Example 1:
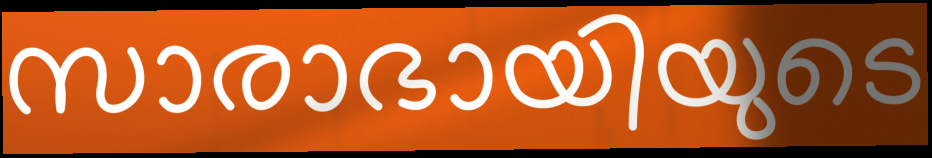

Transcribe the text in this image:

സാരാഭായിയുടെ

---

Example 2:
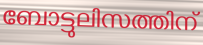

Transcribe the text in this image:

ബോട്ടുലിസത്തിന്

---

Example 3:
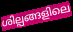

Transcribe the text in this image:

ശില്പങ്ങളിലെ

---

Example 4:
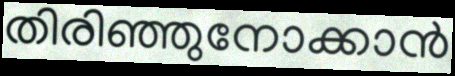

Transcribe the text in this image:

തിരിഞ്ഞുനോക്കാൻ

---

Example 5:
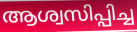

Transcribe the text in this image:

ആശ്വസിപ്പിച്ച